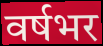
वर्षभर